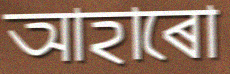
আহাৰো